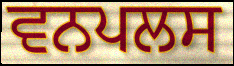
ਵਨਪਲਸ